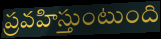
ప్రవహిస్తుంటుంది